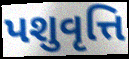
પશુવૃત્તિ